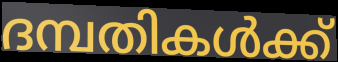
ദമ്പതികൾക്ക്